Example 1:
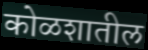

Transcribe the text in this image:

कोळशातील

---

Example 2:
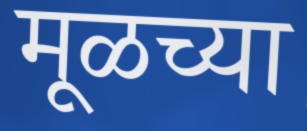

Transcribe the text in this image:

मूळच्या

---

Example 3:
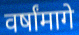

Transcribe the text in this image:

वर्षांमागे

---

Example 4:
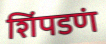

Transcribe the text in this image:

शिंपडणं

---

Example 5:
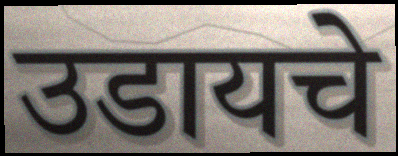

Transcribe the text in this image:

उडायचे